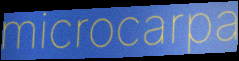
microcarpa